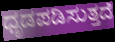
ಧೃಡಪಡಿಸುತ್ತದೆ